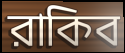
রাকিব